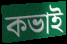
কভাই